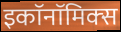
इकॉनॉमिक्‍स